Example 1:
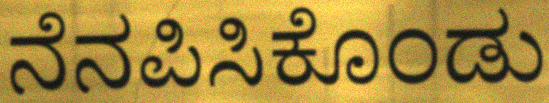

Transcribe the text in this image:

ನೆನಪಿಸಿಕೊಂಡು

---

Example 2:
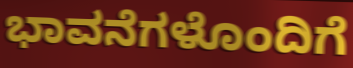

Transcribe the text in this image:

ಭಾವನೆಗಳೊಂದಿಗೆ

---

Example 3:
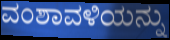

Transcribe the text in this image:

ವಂಶಾವಳಿಯನ್ನು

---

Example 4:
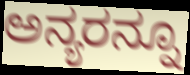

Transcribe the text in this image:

ಅನ್ಯರನ್ನೂ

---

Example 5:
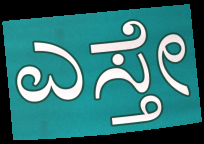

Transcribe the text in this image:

ಎಸ್ತೇ